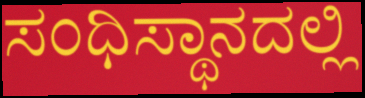
ಸಂಧಿಸ್ಥಾನದಲ್ಲಿ